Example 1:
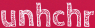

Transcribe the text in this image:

unhchr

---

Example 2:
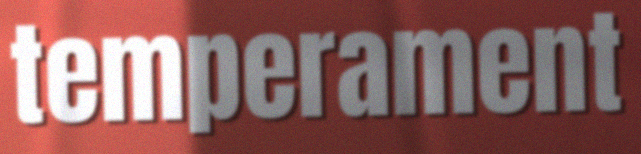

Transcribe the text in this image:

temperament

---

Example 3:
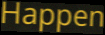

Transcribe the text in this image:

Happen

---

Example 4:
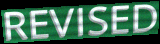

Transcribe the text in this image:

REVISED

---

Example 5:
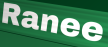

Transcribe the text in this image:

Ranee